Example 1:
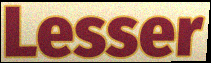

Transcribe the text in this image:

Lesser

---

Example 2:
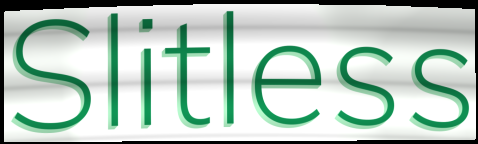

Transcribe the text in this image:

Slitless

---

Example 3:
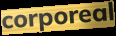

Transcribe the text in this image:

corporeal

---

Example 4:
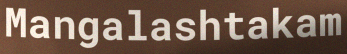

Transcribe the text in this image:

Mangalashtakam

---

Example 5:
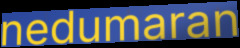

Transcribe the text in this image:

nedumaran